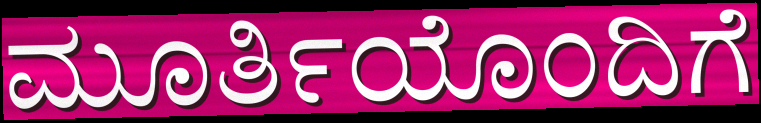
ಮೂರ್ತಿಯೊಂದಿಗೆ